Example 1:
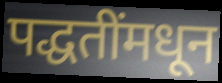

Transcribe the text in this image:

पद्धतींमधून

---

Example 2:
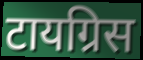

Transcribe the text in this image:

टायग्रिस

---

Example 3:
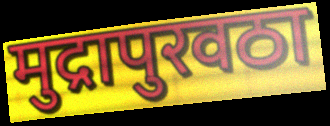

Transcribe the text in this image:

मुद्रापुरवठा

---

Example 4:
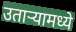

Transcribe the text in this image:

उतार्‍यामध्ये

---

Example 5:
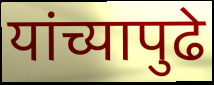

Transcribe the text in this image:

यांच्यापुढे